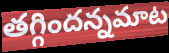
తగ్గిందన్నమాట